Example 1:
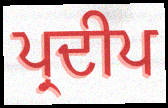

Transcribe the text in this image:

ਪ੍ਰਦੀਪ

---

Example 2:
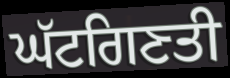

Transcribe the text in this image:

ਘੱਟਗਿਣਤੀ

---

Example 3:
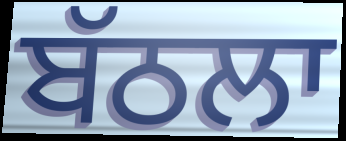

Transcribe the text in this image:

ਬੱਠਲਾ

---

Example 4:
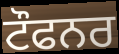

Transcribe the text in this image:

ਟੌਫਨਰ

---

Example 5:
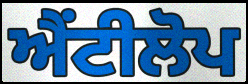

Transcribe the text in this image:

ਐਂਟੀਲੋਪ